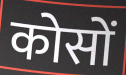
कोसों